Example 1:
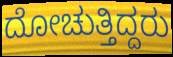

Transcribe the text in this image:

ದೋಚುತ್ತಿದ್ದರು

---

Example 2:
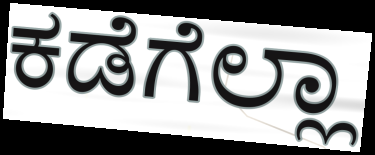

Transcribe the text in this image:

ಕಡೆಗೆಲ್ಲಾ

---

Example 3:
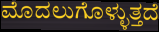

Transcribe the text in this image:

ಮೊದಲುಗೊಳ್ಳುತ್ತದೆ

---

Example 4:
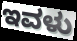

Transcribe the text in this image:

ಇವಳು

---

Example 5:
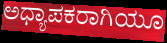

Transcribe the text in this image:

ಅಧ್ಯಾಪಕರಾಗಿಯೂ